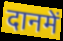
दानमें